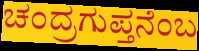
ಚಂದ್ರಗುಪ್ತನೆಂಬ